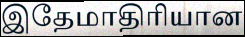
இதேமாதிரியான